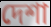
দেশা